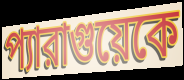
প্যারাগুয়েকে